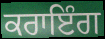
ਕਰਾਇੰਗ